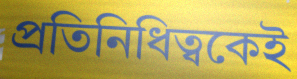
প্রতিনিধিত্বকেই